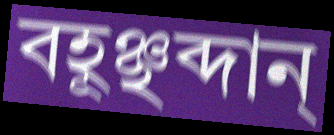
বহূঞ্ছব্দান্